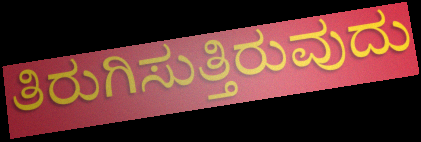
ತಿರುಗಿಸುತ್ತಿರುವುದು